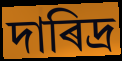
দাৰিদ্ৰ